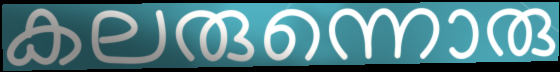
കലരുന്നൊരു